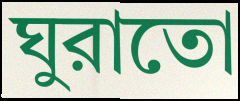
ঘুরাতো